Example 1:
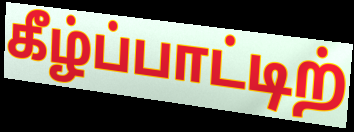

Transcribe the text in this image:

கீழ்ப்பாட்டிற்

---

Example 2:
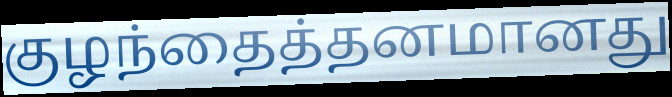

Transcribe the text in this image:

குழந்தைத்தனமானது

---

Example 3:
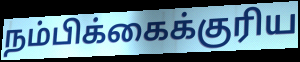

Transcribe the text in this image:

நம்பிக்கைக்குரிய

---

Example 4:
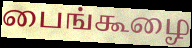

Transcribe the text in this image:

பைங்கூழை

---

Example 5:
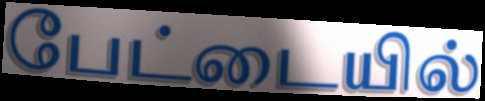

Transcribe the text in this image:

பேட்டையில்